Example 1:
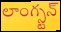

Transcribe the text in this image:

లాంగ్స్టన్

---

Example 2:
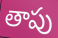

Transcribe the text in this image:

తాపు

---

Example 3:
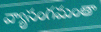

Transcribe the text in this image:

వ్యాసంగమంతా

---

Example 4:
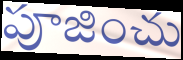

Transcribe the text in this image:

పూజించు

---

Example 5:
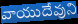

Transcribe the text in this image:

వాయుదేవుని